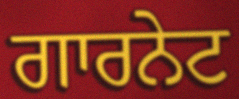
ਗਾਰਨੇਟ